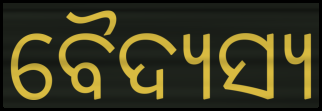
ବୈଦ୍ୟସ୍ୟ